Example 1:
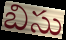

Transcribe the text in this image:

బిసు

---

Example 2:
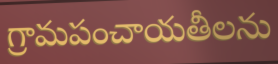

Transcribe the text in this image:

గ్రామపంచాయతీలను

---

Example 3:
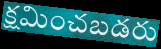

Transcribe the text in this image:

క్షమించబడరు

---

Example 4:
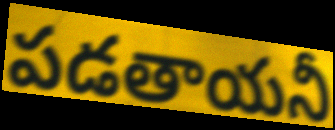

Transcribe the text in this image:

పడతాయనీ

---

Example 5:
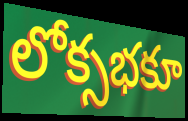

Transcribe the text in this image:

లోక్సభకూ